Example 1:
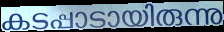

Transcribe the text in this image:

കടപ്പാടായിരുന്നു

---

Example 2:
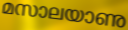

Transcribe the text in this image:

മസാലയാണു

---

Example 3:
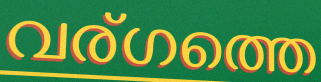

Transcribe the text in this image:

വര്ഗത്തെ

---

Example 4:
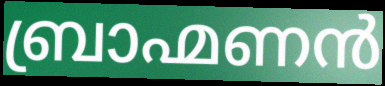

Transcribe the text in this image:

ബ്രാഹ്മണൻ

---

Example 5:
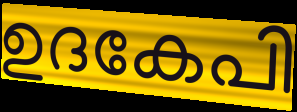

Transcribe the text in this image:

ഉദകേപി